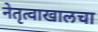
नेतृत्वाखालचा